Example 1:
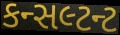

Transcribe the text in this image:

કન્સલ્ટન્ટ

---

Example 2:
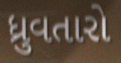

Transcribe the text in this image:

ધ્રુવતારો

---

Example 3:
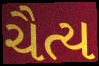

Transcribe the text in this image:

ચૈત્ય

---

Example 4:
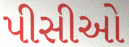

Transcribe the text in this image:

પીસીઓ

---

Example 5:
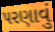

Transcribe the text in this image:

પરણાવું